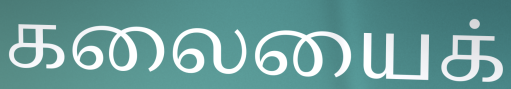
கலையைக்